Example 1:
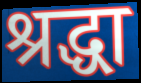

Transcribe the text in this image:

श्रद्धा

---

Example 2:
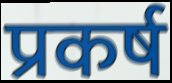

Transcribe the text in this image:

प्रकर्ष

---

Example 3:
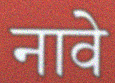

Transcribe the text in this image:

नावे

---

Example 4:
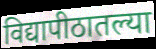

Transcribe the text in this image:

विद्यापीठातल्या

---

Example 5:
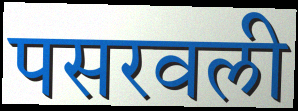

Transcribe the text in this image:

पसरवली